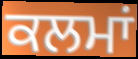
ਕਲਮਾਂ